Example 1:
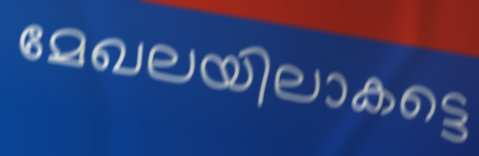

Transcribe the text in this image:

മേഖലയിലാകട്ടെ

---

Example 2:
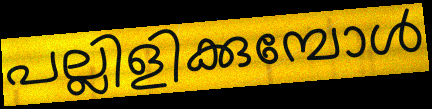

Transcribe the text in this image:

പല്ലിളിക്കുമ്പോൾ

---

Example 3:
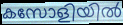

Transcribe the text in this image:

കസോളിയിൽ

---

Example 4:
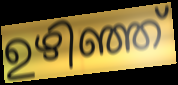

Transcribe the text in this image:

ഉഴിഞ്ഞ്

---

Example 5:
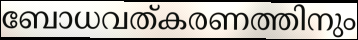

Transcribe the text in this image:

ബോധവത്കരണത്തിനും